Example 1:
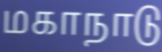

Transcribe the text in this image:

மகாநாடு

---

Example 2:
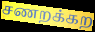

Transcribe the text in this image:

சணறக்கற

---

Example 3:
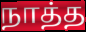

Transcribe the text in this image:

நாத்த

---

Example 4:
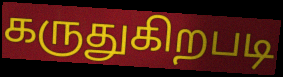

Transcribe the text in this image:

கருதுகிறபடி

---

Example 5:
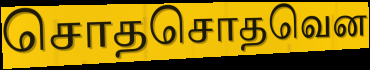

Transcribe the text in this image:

சொதசொதவென